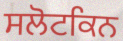
ਸਲੋਟਕਿਨ